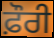
ਫ਼ੌਰੀ